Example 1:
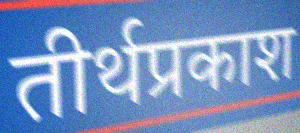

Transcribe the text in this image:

तीर्थप्रकाश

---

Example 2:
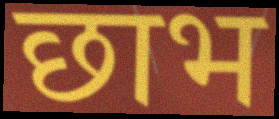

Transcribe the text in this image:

छाभ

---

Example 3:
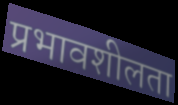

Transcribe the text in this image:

प्रभावशीलता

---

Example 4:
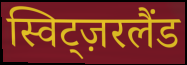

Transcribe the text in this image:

स्विट्ज़रलैंड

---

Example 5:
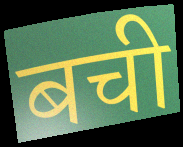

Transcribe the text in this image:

बची